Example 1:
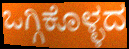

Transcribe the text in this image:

ಒಗ್ಗಿಕೊಳ್ಳದ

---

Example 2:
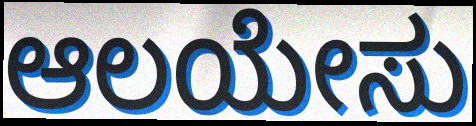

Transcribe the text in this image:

ಆಲಯೇಸು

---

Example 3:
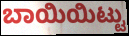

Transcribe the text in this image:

ಬಾಯಿಯಿಟ್ಟು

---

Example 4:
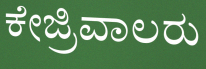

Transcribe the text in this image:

ಕೇಜ್ರಿವಾಲರು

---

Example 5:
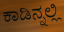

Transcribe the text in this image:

ಕಾಡಿನ್ನಲ್ಲಿ